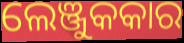
ଲେଞ୍ଜୁକକାର